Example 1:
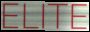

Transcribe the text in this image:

ELITE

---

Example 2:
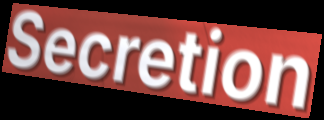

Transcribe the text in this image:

Secretion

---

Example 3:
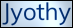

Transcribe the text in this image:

Jyothy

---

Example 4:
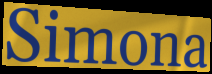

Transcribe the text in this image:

Simona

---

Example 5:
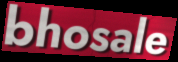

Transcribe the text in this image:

bhosale